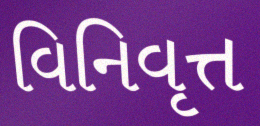
વિનિવૃત્ત